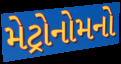
મેટ્રોનોમનો